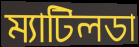
ম্যাটিলডা